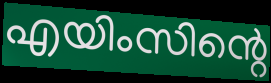
എയിംസിന്റെ